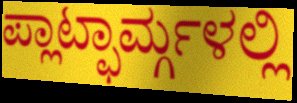
ಪ್ಲಾಟ್ಫಾರ್ಮ್ಗಳಲ್ಲಿ